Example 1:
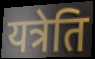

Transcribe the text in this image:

यत्रेति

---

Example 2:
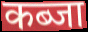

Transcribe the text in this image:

कब्जा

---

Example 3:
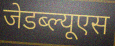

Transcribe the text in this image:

जेडब्ल्यूएस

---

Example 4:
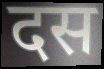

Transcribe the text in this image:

दस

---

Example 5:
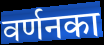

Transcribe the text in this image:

वर्णनका